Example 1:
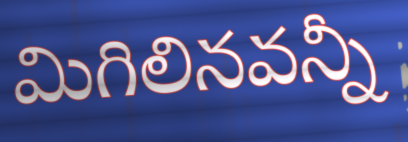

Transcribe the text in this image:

మిగిలినవన్నీ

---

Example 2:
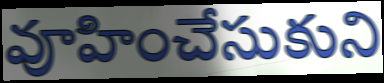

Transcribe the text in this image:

వూహించేసుకుని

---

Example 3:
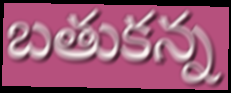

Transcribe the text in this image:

బతుకన్న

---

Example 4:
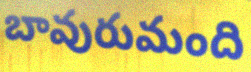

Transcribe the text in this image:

బావురుమంది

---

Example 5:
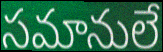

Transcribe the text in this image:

సమానులే